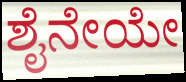
ಶೈನೇಯೇ